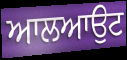
ਆਲਆਉਟ